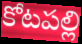
కోటపల్లి